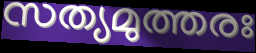
സത്യമുത്തരഃ